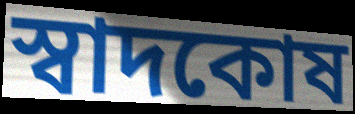
স্বাদকোষ